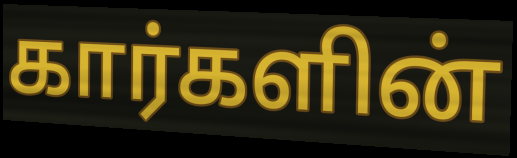
கார்களின்